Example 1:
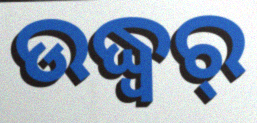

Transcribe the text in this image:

ଉଦ୍ଧ୍ୱର୍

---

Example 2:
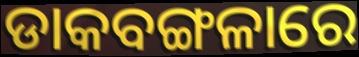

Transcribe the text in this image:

ଡାକବଙ୍ଗଳାରେ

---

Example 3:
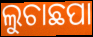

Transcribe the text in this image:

ଲୁଚାଛପା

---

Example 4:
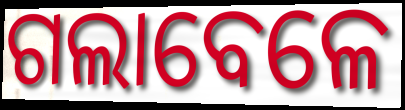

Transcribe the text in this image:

ଗଲାବେଳେ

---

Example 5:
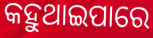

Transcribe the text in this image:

କହୁଥାଇପାରେ